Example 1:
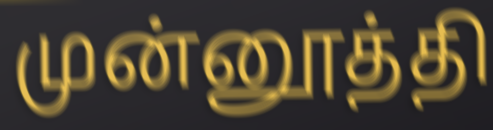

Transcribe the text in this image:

முன்னூத்தி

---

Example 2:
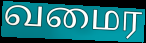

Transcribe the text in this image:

வமைர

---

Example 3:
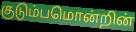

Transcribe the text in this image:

குடும்பமொன்றின்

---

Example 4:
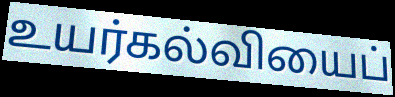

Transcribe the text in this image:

உயர்கல்வியைப்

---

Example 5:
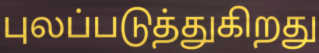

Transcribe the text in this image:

புலப்படுத்துகிறது